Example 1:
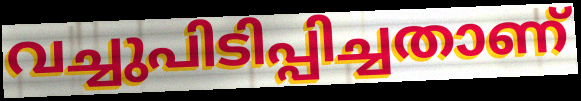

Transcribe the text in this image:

വച്ചുപിടിപ്പിച്ചതാണ്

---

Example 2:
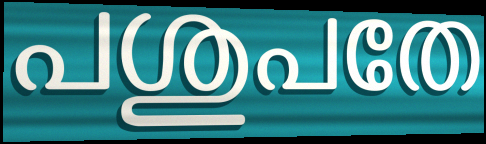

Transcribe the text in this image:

പശുപതേ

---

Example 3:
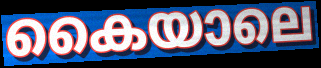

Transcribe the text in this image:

കൈയാലെ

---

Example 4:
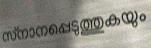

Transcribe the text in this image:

സ്‌നാനപ്പെടുത്തുകയും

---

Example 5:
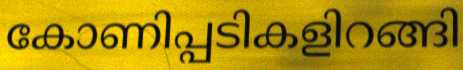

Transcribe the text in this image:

കോണിപ്പടികളിറങ്ങി